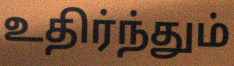
உதிர்ந்தும்